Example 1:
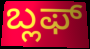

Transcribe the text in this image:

ಬ್ಲಫ್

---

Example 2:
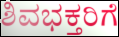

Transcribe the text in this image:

ಶಿವಭಕ್ತರಿಗೆ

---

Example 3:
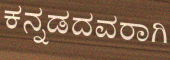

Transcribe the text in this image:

ಕನ್ನಡದವರಾಗಿ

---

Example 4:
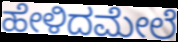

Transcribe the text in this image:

ಹೇಳಿದಮೇಲೆ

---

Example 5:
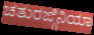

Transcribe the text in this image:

ಚತುರಙ್ಗಿನಿಯಾ